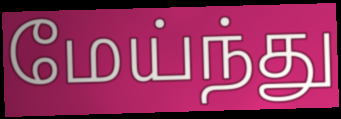
மேய்ந்து